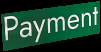
Payment